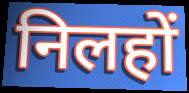
निलहों